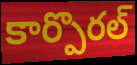
కార్పొరల్